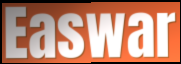
Easwar